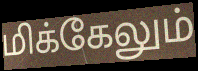
மிக்கேலும்